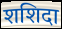
शशिदा